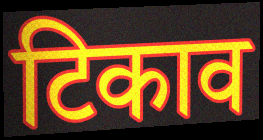
टिकाव